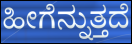
ಹೀಗೆನ್ನುತ್ತದೆ